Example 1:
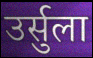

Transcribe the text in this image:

उर्सुला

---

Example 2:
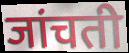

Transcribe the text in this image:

जांचती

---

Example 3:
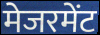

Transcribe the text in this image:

मेजरमेंट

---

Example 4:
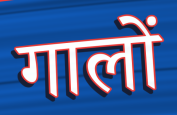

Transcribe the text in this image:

गालों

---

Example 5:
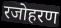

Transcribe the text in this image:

रजोहरण